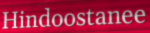
Hindoostanee